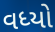
વધ્યો